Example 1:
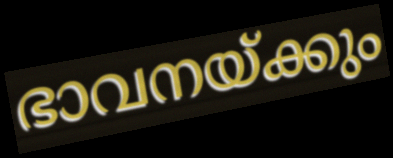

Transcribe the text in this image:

ഭാവനയ്ക്കും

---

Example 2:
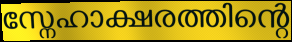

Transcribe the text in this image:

സ്നേഹാക്ഷരത്തിന്റെ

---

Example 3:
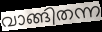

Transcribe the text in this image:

വാങ്ങിതന്ന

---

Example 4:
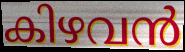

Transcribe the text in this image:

കിഴവൻ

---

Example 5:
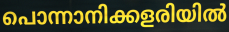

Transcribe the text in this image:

പൊന്നാനിക്കളരിയിൽ